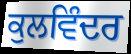
ਕੁਲਵਿੰਦਰ